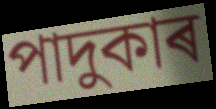
পাদুকাৰ